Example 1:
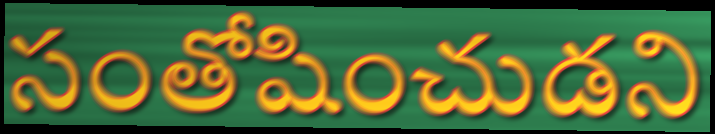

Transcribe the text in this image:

సంతోషించుడని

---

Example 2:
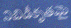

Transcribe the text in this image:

నిబిడీకృతమై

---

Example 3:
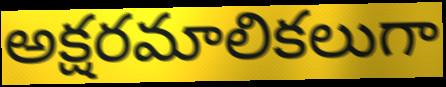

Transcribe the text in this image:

అక్షరమాలికలుగా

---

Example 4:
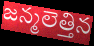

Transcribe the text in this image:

జన్మలెత్తిన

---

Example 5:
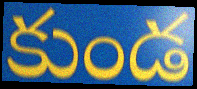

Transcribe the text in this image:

కుండ